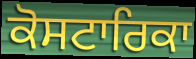
ਕੋਸਟਾਰਿਕਾ